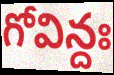
గోవిన్దః